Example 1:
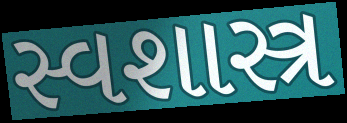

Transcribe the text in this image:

સ્વશાસ્ત્ર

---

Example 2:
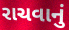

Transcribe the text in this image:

રાચવાનું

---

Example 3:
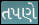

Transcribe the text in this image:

તપણે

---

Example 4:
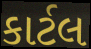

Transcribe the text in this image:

કાર્ટલ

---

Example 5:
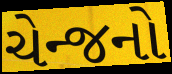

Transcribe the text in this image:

ચેન્જનો